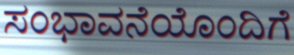
ಸಂಭಾವನೆಯೊಂದಿಗೆ